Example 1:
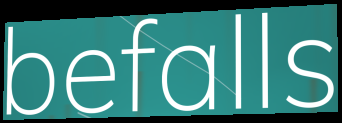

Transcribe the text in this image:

befalls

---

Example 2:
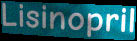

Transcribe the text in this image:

Lisinopril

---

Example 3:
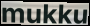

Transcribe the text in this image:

mukku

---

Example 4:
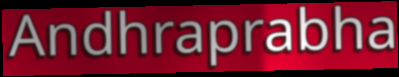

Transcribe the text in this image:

Andhraprabha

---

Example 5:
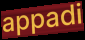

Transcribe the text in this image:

appadi